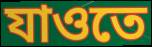
যাওতে